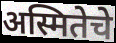
अस्मितेचे